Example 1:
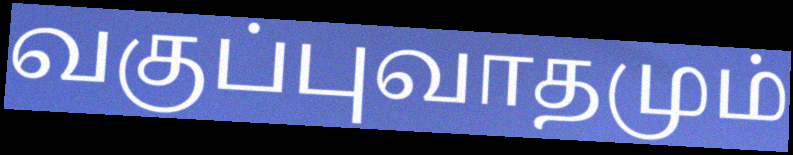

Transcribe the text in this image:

வகுப்புவாதமும்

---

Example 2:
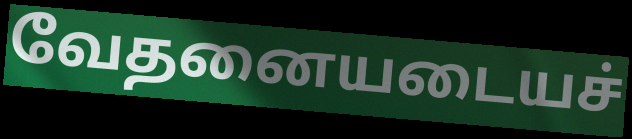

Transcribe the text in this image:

வேதனையடையச்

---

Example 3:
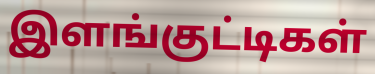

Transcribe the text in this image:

இளங்குட்டிகள்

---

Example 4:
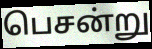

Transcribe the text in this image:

பெசன்று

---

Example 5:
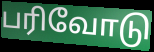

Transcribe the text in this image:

பரிவோடு